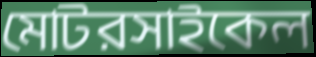
মোটরসাইকেল